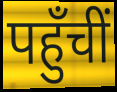
पहुँचीं